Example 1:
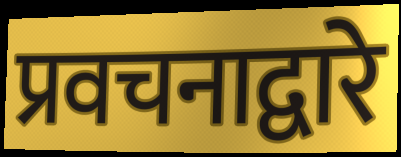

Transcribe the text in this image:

प्रवचनाद्वारे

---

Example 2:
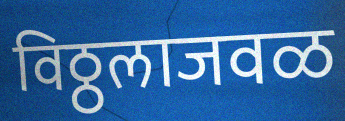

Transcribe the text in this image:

विठ्ठलाजवळ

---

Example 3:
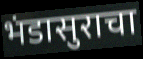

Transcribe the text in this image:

भंडासुराचा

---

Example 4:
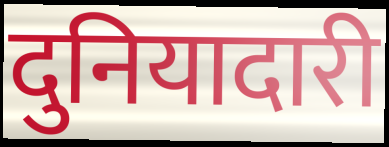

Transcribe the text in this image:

दुनियादारी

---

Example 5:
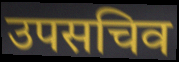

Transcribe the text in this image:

उपसचिव